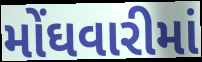
મોંઘવારીમાં